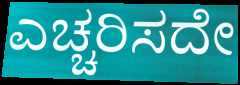
ಎಚ್ಚರಿಸದೇ